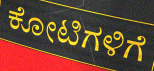
ಕೋಟಿಗಳಿಗೆ